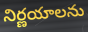
నిర్ణయాలను